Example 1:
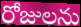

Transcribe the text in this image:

రోజులను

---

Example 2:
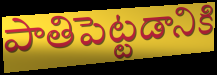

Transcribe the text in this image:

పాతిపెట్టడానికి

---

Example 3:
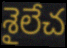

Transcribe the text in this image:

శైలేచ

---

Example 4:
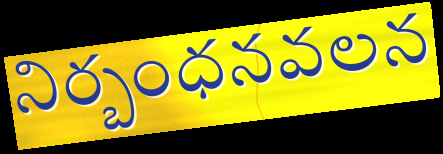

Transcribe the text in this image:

నిర్బంధనవలన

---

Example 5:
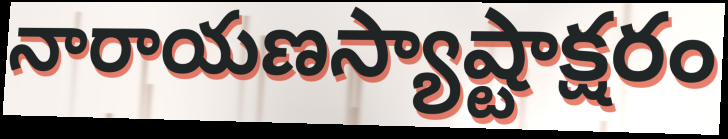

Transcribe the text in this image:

నారాయణస్యాష్టాక్షరం